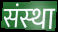
संस्‍था